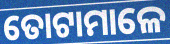
ତୋଟାମାଳେ